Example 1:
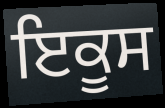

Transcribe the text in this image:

ਇਕੂਸ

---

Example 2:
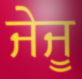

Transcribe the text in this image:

ਜੇਜੂ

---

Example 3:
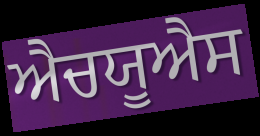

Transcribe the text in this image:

ਐਚਯੂਐਸ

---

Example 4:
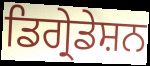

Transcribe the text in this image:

ਡਿਗ੍ਰੇਡੇਸ਼ਨ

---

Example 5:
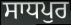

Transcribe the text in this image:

ਸਾਧਪੁਰ